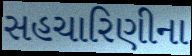
સહચારિણીના